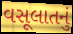
વસૂલાતનું